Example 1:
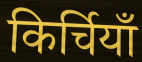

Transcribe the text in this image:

किर्चियाँ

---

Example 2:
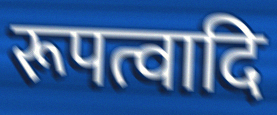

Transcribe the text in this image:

रूपत्वादि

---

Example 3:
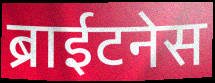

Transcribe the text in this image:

ब्राईटनेस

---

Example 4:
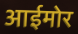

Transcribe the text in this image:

आईमोर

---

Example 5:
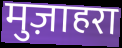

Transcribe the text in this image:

मुज़ाहरा